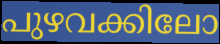
പുഴവക്കിലോ